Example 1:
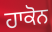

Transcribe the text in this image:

ਹਾਕੋਨ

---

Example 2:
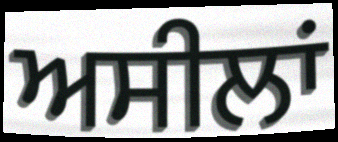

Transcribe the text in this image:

ਅਸੀਲਾਂ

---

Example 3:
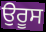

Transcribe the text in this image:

ਉਰੂਸ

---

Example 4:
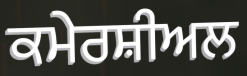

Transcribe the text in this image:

ਕਮੇਰਸ਼ੀਅਲ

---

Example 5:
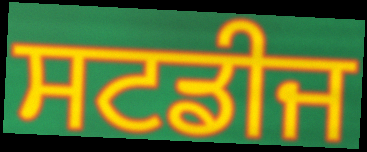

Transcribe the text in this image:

ਸਟਡੀਜ